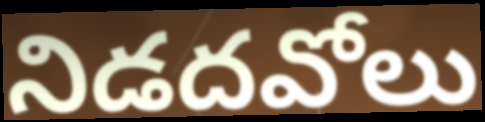
నిడదవోలు